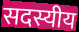
सदस्यीय